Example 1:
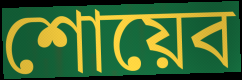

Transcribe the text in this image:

শোয়েব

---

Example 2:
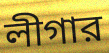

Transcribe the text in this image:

লীগার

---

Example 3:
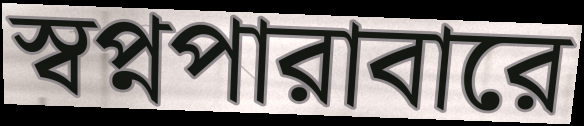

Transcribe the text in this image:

স্বপ্নপারাবারে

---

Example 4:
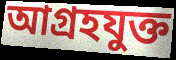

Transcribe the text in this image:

আগ্রহযুক্ত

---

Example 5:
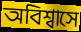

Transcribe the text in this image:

অবিশ্বাসে